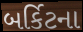
બર્કિટના